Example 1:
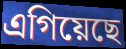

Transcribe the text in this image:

এগিয়েছে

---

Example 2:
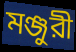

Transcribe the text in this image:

মঞ্জুরী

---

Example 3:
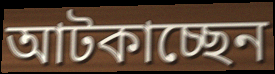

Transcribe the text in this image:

আটকাচ্ছেন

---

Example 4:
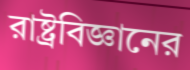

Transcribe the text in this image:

রাষ্ট্রবিজ্ঞানের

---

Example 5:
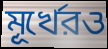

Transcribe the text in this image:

মূর্খেরও